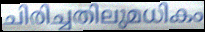
ചിരിച്ചതിലുമധികം